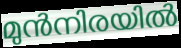
മുൻനിരയിൽ